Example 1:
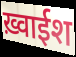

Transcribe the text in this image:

ख़्वाईश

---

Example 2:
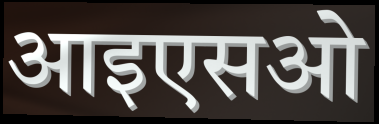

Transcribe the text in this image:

आइएसओ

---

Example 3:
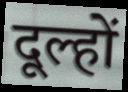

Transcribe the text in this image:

दूल्हों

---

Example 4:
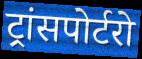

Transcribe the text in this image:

ट्रांसपोर्टरो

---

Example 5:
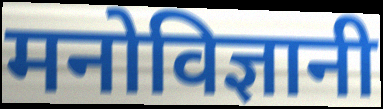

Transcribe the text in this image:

मनोविज्ञानी